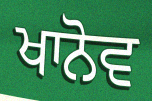
ਖਾਨੋਵ